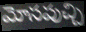
మోసపుచ్చి